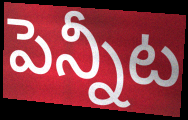
పెన్నీట